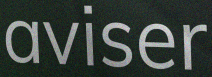
aviser